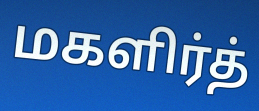
மகளிர்த்